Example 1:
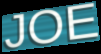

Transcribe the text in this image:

JOE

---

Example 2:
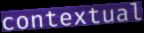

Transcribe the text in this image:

contextual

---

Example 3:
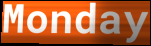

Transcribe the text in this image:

Monday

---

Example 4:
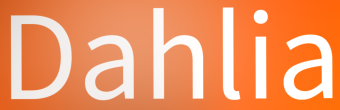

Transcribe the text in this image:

Dahlia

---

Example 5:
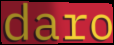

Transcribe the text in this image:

daro